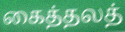
கைத்தலத்